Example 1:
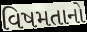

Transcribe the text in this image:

વિષમતાનો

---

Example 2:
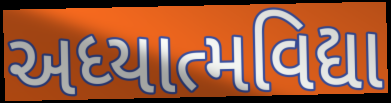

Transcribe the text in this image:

અધ્યાત્મવિદ્યા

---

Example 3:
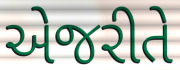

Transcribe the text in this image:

એજરીતે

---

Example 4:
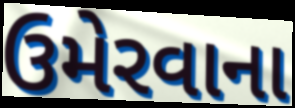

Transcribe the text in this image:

ઉમેરવાના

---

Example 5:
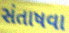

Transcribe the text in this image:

સંતાષવા